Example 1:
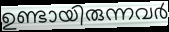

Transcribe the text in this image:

ഉണ്ടായിരുന്നവർ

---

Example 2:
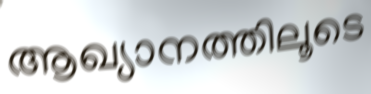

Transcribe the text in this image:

ആഖ്യാനത്തിലൂടെ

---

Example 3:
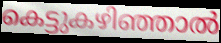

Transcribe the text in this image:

കെട്ടുകഴിഞ്ഞാൽ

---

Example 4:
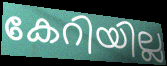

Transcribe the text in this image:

കേറിയില്ല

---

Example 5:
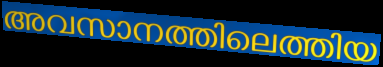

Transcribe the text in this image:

അവസാനത്തിലെത്തിയ